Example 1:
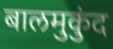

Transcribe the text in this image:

बालमुकुंद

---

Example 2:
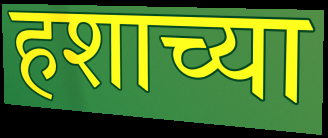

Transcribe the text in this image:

हशाच्या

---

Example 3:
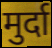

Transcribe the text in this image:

मुर्दा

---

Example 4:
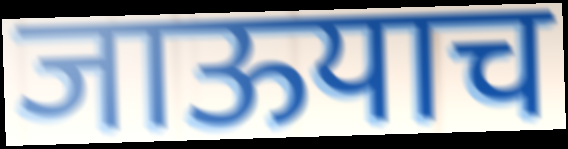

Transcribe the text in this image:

जाऊयाच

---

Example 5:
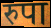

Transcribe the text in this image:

रुपा